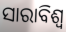
ସାରାବିଶ୍ବ